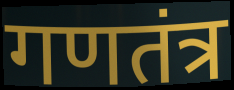
गणतंत्र